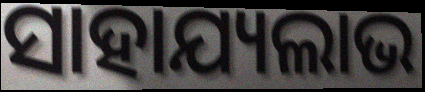
ସାହାଯ୍ୟଲାଭ